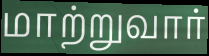
மாற்றுவார்